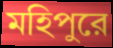
মহিপুরে